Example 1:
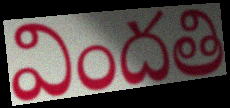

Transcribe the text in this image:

విందతి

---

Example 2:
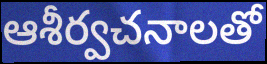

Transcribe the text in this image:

ఆశీర్వచనాలతో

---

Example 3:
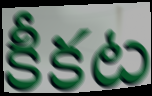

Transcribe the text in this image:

కీకట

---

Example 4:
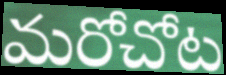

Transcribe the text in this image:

మరోచోట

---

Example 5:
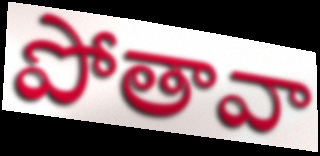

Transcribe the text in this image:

పోతావా